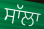
ਸਾੱਲਾ